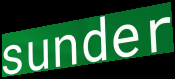
sunder